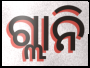
ଗ୍ଲାନି